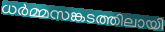
ധർമ്മസങ്കടത്തിലായി